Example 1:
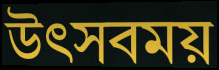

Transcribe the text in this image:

উৎসবময়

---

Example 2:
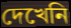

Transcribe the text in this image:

দেখেনি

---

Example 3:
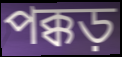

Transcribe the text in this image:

পক্কড়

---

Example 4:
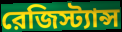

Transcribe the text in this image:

রেজিস্ট্যান্স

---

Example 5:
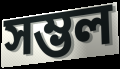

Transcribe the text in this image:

সম্ভল